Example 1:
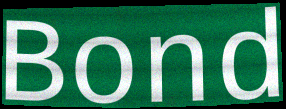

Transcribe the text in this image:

Bond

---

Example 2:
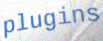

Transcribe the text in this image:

plugins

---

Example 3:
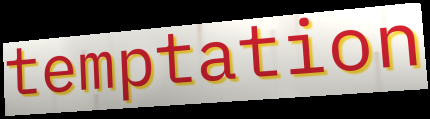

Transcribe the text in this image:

temptation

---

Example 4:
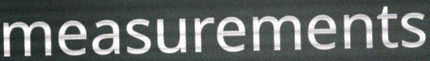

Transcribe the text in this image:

measurements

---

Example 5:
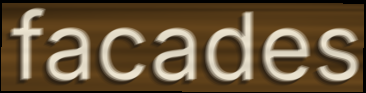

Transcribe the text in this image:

facades